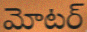
మోటర్